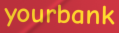
yourbank